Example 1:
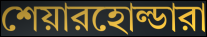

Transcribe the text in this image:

শেয়ারহোল্ডারা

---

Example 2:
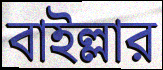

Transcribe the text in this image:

বাইল্লার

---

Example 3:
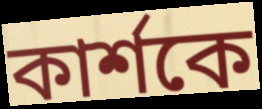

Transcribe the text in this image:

কার্শকে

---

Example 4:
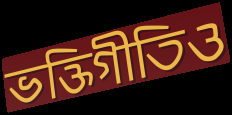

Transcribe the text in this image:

ভক্তিগীতিও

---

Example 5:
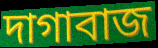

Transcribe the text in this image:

দাগাবাজ